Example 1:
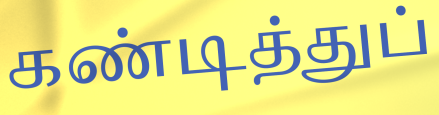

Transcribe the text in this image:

கண்டித்துப்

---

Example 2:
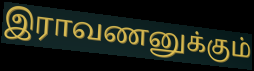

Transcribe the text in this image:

இராவணனுக்கும்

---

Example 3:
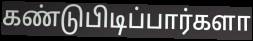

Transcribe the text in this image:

கண்டுபிடிப்பார்களா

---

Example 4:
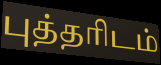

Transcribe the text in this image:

புத்தரிடம்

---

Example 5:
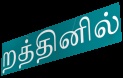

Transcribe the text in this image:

றத்தினில்